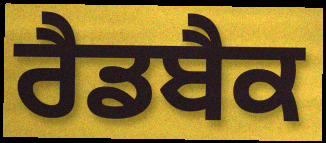
ਰੈਡਬੈਕ